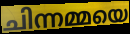
ചിന്നമ്മയെ